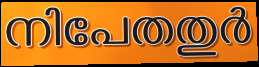
നിപേതതുർ